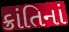
ક્રાંતિનાં